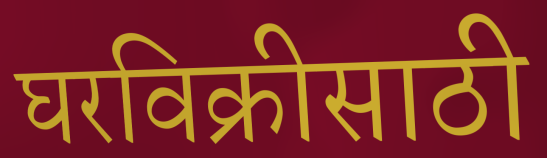
घरविक्रीसाठी